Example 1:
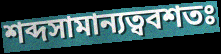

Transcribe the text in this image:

শব্দসামান্যত্ববশতঃ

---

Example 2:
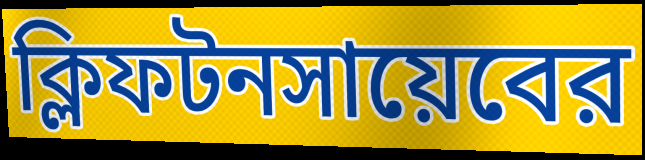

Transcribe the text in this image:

ক্লিফটনসায়েবের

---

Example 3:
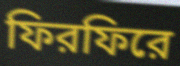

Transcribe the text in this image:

ফিরফিরে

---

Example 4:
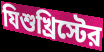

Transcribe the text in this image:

যিশুখ্রিস্টের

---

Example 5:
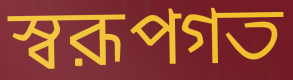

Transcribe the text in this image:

স্বরূপগত